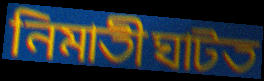
নিমাতীঘাটত